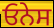
ਓਨੇਸ